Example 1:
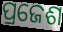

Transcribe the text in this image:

ପ୍ରଜେଶ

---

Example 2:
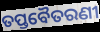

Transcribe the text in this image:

ତପ୍ତବୈତରଣୀ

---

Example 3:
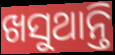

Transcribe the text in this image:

ଖସୁଥାନ୍ତି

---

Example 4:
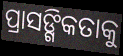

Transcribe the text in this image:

ପ୍ରାସଙ୍ଗିକତାକୁ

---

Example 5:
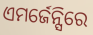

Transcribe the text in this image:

ଏମର୍ଜେନ୍ସିରେ